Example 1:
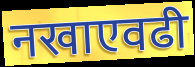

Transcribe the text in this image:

नखाएवढी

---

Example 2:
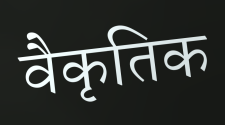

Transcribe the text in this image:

वैकृतिक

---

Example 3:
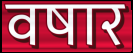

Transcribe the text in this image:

वषार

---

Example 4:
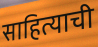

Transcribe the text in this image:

साहित्याची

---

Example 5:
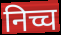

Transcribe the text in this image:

निच्च